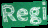
Regi